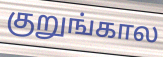
குறுங்கால